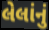
લેલાંનું